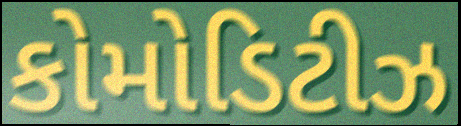
કોમોડિટીઝ